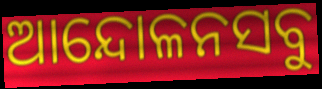
ଆନ୍ଦୋଳନସବୁ